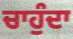
ਚਾਹੁੰਦਾ